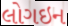
લોગઇન